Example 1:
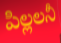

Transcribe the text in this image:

పిల్లలనీ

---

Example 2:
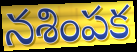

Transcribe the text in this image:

నశింపక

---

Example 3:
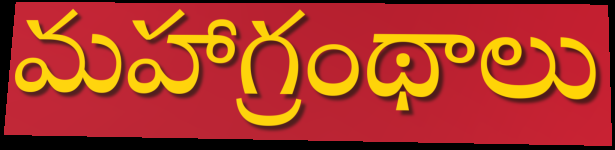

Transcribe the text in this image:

మహాగ్రంథాలు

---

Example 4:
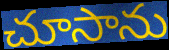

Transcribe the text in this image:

చూసాను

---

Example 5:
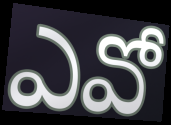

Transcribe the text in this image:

ఎవో